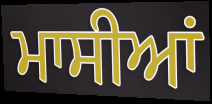
ਮਾਸੀਆਂ